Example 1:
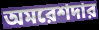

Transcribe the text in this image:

অমরেশদার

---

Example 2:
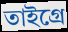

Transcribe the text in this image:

তাইগ্রে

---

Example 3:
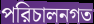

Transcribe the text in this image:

পরিচালনগত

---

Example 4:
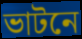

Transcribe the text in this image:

ভাটনে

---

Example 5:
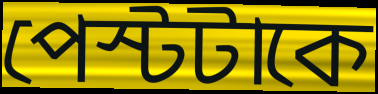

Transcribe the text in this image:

পেস্টটাকে